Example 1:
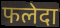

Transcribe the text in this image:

फलेदा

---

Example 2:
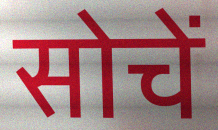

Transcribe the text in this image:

सोचें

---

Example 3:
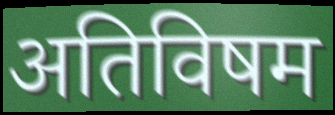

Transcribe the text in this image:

अतिविषम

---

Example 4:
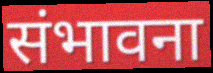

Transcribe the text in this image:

संभावना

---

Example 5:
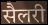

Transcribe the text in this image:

सैलरी